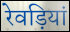
रेवड़ियां